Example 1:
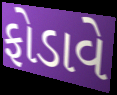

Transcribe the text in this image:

ફોડાવે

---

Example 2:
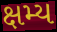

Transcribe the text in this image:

ક્ષમ્ય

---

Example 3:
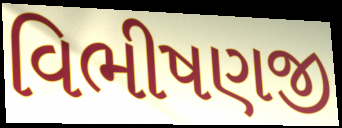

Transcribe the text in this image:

વિભીષણજી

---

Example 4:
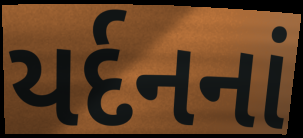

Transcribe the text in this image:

યર્દનનાં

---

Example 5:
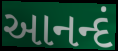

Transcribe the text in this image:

આનન્દં